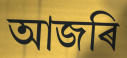
আজৰি